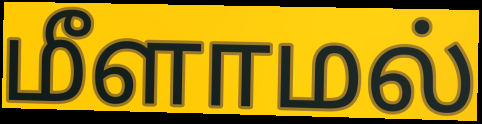
மீளாமல்